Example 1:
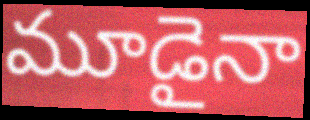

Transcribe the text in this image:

మూడైనా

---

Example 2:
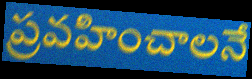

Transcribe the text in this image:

ప్రవహించాలనే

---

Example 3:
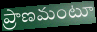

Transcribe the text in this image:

ప్రాణమంటూ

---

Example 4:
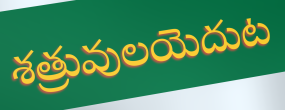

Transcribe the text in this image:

శత్రువులయెదుట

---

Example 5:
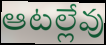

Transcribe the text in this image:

ఆటల్లేవు